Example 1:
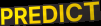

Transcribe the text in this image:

PREDICT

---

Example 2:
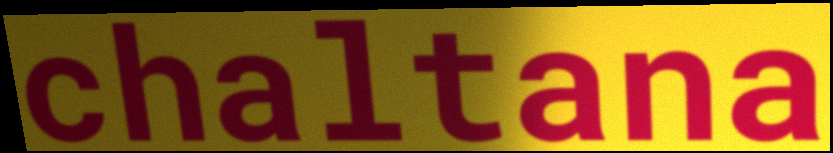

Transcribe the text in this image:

chaltana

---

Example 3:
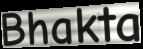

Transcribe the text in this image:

Bhakta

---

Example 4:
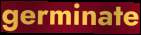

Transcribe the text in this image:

germinate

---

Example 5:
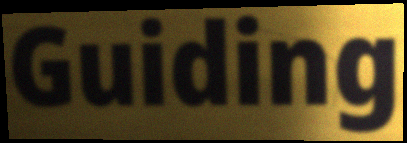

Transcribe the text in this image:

Guiding